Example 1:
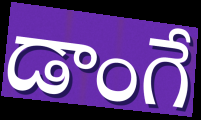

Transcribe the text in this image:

డాంగే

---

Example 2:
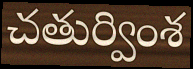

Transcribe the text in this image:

చతుర్వింశ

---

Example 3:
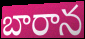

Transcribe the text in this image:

బారాన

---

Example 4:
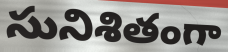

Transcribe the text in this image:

సునిశితంగా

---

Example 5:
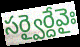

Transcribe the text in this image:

సర్వైర్దేవైః